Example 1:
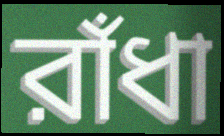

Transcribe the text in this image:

রাঁধা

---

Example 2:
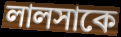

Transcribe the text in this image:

লালসাকে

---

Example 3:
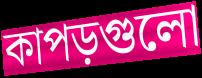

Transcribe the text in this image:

কাপড়গুলো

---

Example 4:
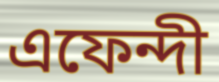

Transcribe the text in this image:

এফেন্দী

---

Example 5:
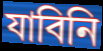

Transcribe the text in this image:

যাবিনি